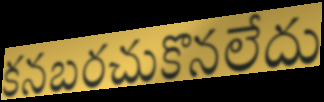
కనబరచుకొనలేదు